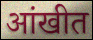
आंखीत